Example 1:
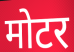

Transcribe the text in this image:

मोटर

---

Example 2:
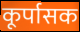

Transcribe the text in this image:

कूर्पासक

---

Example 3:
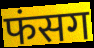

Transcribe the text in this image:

फंसग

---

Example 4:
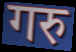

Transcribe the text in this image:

गरु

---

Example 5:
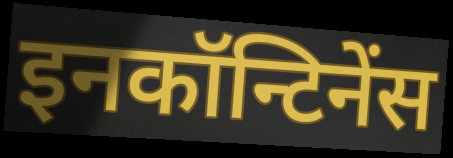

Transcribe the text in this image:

इनकॉन्टिनेंस